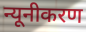
न्यूनीकरण